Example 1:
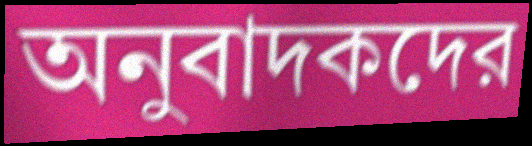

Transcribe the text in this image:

অনুবাদকদের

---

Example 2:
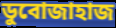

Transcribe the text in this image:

ডুবোজাহাজ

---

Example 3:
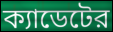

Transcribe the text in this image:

ক্যাডেটের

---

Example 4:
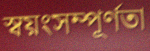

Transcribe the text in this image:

স্বয়ংসম্পূর্ণতা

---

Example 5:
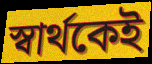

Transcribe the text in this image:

স্বার্থকেই